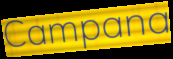
Campana